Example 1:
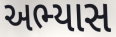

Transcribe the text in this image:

અભ્યાસ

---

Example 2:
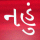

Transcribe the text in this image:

નહું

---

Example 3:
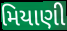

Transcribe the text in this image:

મિયાણી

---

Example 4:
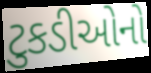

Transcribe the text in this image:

ટુકડીઓનો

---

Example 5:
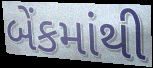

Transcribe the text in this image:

બેંકમાંથી